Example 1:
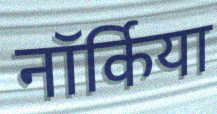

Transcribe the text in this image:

नॉर्किया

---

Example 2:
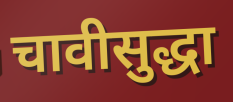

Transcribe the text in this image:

चावीसुद्धा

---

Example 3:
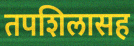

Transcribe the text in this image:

तपशिलासह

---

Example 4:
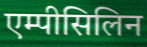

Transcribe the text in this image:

एम्पीसिलिन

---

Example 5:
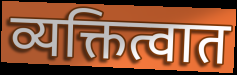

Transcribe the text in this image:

व्यक्तित्वात